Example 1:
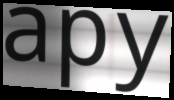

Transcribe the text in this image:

apy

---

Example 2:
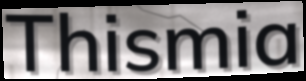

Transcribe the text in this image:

Thismia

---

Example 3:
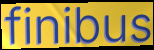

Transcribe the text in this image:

finibus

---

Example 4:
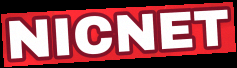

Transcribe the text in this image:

NICNET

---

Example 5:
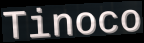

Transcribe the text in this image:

Tinoco